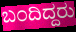
ಬಂದಿದ್ದರು